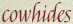
cowhides